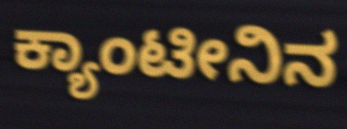
ಕ್ಯಾಂಟೀನಿನ